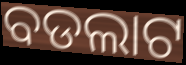
ବଡଲାଟ